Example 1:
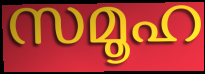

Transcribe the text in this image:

സമൂഹ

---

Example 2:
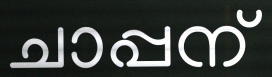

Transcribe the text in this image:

ചാപ്പന്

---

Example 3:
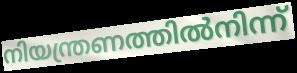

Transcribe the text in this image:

നിയന്ത്രണത്തിൽനിന്ന്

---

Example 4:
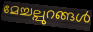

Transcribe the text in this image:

മേച്ചല്പുറങ്ങൾ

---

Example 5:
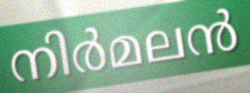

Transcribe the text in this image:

നിർമലൻ